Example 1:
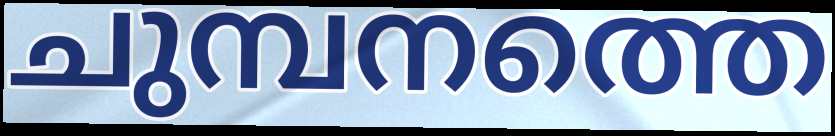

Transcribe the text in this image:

ചുമ്പനത്തെ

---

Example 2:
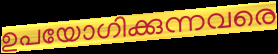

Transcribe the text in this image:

ഉപയോഗിക്കുന്നവരെ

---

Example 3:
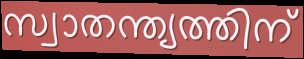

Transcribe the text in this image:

സ്വാതന്ത്യത്തിന്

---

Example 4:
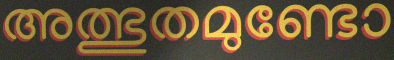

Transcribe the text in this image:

അത്ഭുതമുണ്ടോ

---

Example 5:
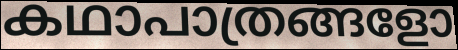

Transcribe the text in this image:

കഥാപാത്രങ്ങളോ